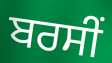
ਬਰਸੀਂ